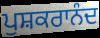
ਪੁਸ਼ਕਰਾਨੰਦ